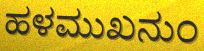
ಹಳಮುಖನುಂ